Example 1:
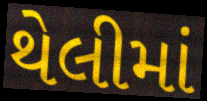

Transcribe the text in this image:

થેલીમાં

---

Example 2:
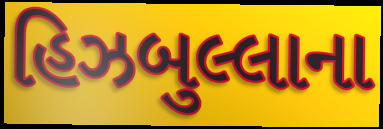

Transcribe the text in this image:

હિઝબુલ્લાના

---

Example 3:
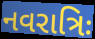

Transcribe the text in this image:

નવરાત્રિઃ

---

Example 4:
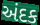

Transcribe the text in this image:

અંદક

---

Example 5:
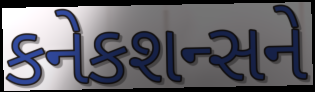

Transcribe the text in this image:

કનેકશન્સને